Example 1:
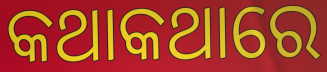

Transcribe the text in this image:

କଥାକଥାରେ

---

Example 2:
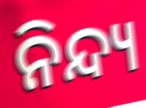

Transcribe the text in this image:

ନିନ୍ଦ୍ୟ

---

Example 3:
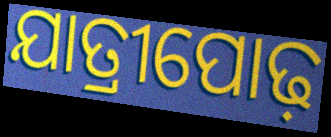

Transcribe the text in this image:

ଯାତ୍ରୀପୋଢ଼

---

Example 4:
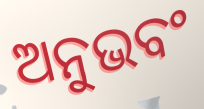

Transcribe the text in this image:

ଅନୁଭବଂ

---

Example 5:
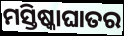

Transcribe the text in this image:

ମସ୍ତିଷ୍କାଘାତର